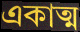
একাত্ম